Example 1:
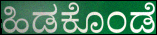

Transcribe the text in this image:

ಹಿಡಕೊಂಡೆ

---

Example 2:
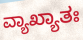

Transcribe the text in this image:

ವ್ಯಾಖ್ಯಾತಃ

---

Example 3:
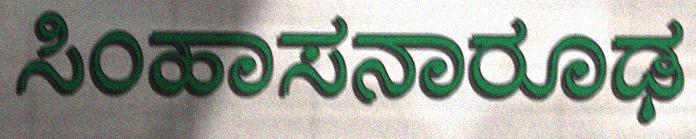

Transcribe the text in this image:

ಸಿಂಹಾಸನಾರೂಢ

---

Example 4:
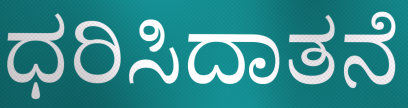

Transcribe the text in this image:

ಧರಿಸಿದಾತನೆ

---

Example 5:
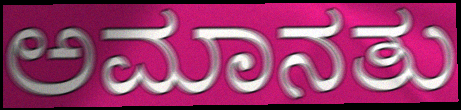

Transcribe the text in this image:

ಅಮಾನತು